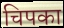
चिपका